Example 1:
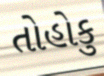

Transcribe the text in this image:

તોહોકુ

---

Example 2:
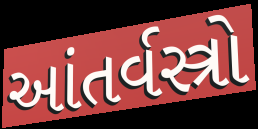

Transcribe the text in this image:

આંતર્વસ્ત્રો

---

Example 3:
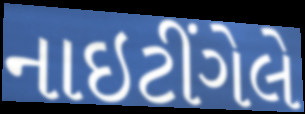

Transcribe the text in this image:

નાઇટીંગેલે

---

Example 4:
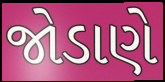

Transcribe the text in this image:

જોડાણે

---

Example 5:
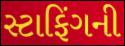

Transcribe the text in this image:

સ્ટાફિંગની